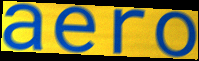
aero